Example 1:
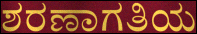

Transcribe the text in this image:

ಶರಣಾಗತಿಯ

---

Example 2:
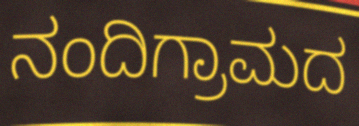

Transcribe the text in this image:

ನಂದಿಗ್ರಾಮದ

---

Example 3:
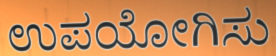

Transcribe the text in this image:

ಉಪಯೋಗಿಸು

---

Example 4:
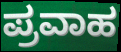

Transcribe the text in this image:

ಪ್ರವಾಹ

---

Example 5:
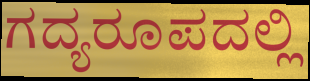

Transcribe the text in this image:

ಗದ್ಯರೂಪದಲ್ಲಿ